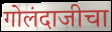
गोलंदाजीचा